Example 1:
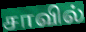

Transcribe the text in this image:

சாவில்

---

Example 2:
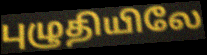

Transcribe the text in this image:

புழுதியிலே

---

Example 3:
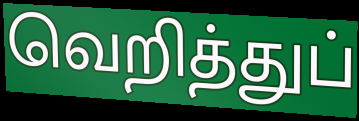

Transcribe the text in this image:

வெறித்துப்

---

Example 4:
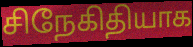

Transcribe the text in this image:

சிநேகிதியாக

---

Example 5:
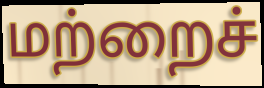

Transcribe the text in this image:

மற்றைச்